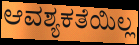
ಆವಶ್ಯಕತೆಯಿಲ್ಲ